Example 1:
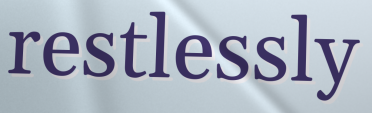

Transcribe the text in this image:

restlessly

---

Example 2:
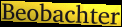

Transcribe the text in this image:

Beobachter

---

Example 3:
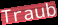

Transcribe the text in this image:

Traub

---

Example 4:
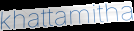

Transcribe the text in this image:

khattamitha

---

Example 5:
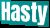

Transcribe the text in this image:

Hasty